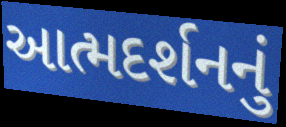
આત્મદર્શનનું